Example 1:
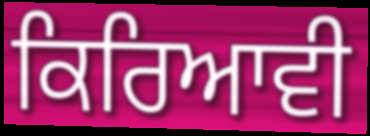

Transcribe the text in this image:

ਕਿਰਿਆਵੀ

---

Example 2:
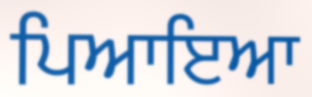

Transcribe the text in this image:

ਪਿਆਇਆ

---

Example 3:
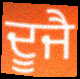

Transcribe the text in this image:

ਦੂਜੈ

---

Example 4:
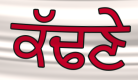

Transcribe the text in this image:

ਕੱਢਣੇ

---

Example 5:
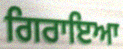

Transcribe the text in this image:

ਗਿਰਾਇਆ